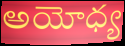
అయోధ్య